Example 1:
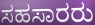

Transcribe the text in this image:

ಸಹಸಾರರು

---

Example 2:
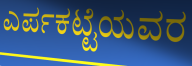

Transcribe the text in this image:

ಎರ್ಪಕಟ್ಟೆಯವರ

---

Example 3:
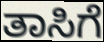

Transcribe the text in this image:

ತಾಸಿಗೆ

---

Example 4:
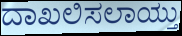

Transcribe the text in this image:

ದಾಖಲಿಸಲಾಯ್ತು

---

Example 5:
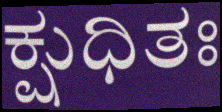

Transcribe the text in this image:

ಕ್ಷುಧಿತಃ